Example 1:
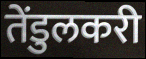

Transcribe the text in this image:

तेंडुलकरी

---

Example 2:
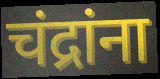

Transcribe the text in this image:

चंद्रांना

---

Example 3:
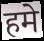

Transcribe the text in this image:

हमे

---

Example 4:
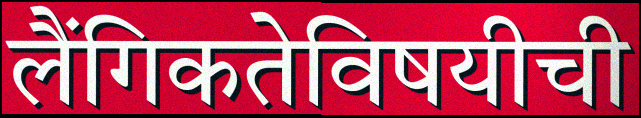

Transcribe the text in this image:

लैंगिकतेविषयीची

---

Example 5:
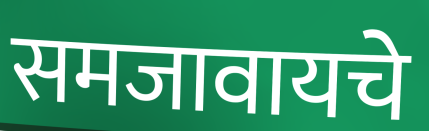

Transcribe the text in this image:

समजावायचे